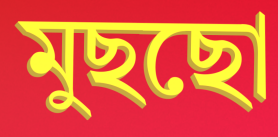
মুছছো